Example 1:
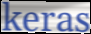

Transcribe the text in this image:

keras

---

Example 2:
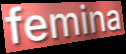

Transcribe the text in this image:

femina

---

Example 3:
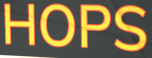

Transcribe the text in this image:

HOPS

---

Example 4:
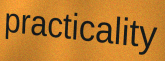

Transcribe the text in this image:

practicality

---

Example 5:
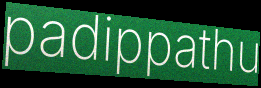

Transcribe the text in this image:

padippathu